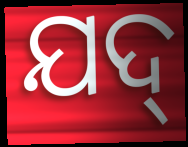
ଯଦ୍